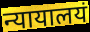
न्यायालयं